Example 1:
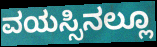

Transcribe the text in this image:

ವಯಸ್ಸಿನಲ್ಲೂ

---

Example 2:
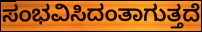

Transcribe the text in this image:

ಸಂಭವಿಸಿದಂತಾಗುತ್ತದೆ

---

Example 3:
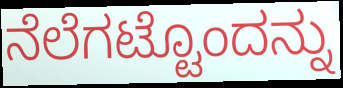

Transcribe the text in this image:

ನೆಲೆಗಟ್ಟೊಂದನ್ನು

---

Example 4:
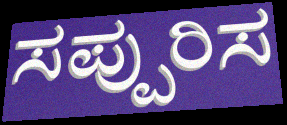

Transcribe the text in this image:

ಸಪ್ಪುರಿಸ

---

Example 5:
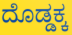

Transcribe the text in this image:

ದೊಡ್ಡಕ್ಕ